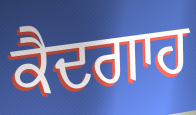
ਕੈਦਗਾਹ